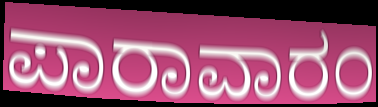
ಪಾರಾವಾರಂ